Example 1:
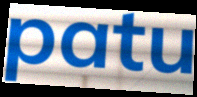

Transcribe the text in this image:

patu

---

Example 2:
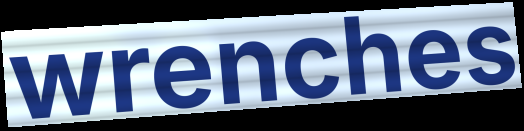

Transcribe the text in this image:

wrenches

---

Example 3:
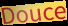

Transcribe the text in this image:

Douce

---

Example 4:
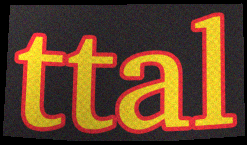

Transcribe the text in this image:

ttal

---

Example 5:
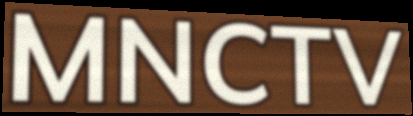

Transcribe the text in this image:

MNCTV